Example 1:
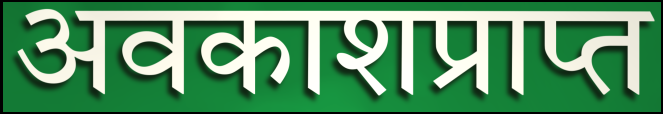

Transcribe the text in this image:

अवकाशप्राप्त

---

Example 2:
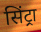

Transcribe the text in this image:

सिंट्रा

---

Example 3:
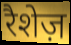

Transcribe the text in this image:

रैशेज़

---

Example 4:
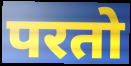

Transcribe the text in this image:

परतो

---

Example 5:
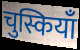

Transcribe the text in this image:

चुस्कियाँ